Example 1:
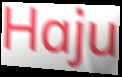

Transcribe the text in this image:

Haju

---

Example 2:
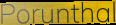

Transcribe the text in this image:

Porunthal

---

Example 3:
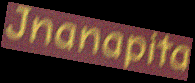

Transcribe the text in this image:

Jnanapita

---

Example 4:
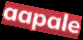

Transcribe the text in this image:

aapale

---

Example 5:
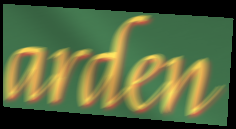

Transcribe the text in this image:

arden